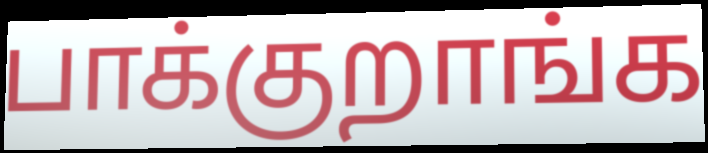
பாக்குறாங்க